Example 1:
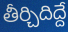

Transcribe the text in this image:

తీర్చిదిద్దే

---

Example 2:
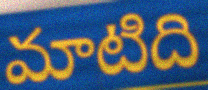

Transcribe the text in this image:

మాటిది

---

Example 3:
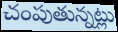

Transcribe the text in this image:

చంపుతున్నట్లు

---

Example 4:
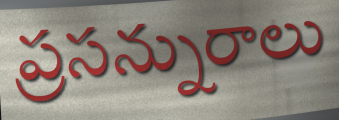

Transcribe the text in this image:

ప్రసన్నురాలు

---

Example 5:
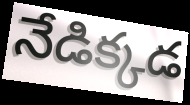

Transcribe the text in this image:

నేడిక్కడ